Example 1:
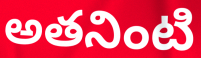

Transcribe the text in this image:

అతనింటి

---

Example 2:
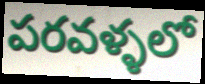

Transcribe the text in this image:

పరవళ్ళలో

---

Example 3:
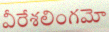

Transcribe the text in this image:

వీరేశలింగమో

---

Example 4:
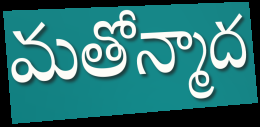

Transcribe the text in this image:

మతోన్మాద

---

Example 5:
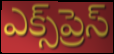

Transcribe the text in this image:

ఎక్స్‌ప్రెస్